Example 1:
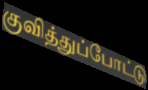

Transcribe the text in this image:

குவித்துப்போட்டு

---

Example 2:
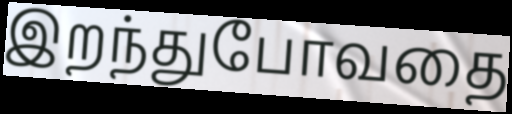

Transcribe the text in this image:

இறந்துபோவதை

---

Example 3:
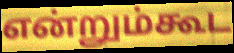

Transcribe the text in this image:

என்றும்கூட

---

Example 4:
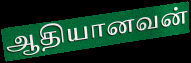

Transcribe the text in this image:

ஆதியானவன்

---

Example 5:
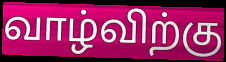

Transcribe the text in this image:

வாழ்விற்கு